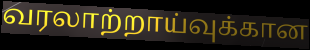
வரலாற்றாய்வுக்கான